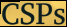
CSPs